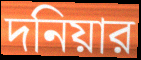
দনিয়ার